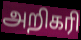
அறிகரி